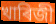
খাৰিজী